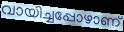
വായിച്ചപ്പോഴാണ്